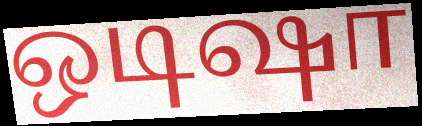
ஒடிஷா